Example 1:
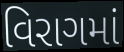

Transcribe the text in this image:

વિરાગમાં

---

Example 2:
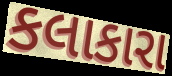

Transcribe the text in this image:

કલાકારા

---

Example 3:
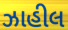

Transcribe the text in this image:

ઝાહીલ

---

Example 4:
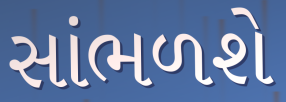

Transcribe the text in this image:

સાંભળશે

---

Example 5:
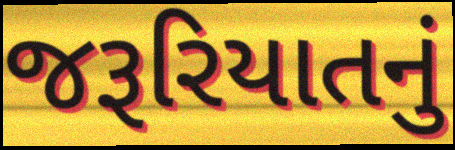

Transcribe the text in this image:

જરૂરિયાતનું